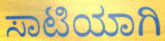
ಸಾಟಿಯಾಗಿ